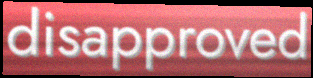
disapproved